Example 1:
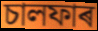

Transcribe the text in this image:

চালফাৰ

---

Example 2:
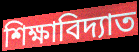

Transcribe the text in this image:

শিক্ষাবিদ্যাত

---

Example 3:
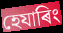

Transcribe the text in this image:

হেযাৰিং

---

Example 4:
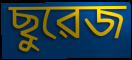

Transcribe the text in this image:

ছুৱেজ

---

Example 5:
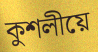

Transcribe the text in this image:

কুশলীয়ে